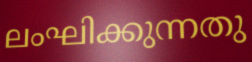
ലംഘിക്കുന്നതു